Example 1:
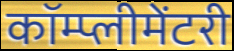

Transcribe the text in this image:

कॉम्प्लीमेंटरी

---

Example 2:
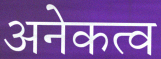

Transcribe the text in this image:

अनेकत्व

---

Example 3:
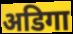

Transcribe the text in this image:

अडिगा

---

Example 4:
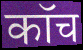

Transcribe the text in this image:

कॉच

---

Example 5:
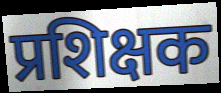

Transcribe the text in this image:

प्रशिक्षक